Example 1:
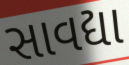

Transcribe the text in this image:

સાવદ્યા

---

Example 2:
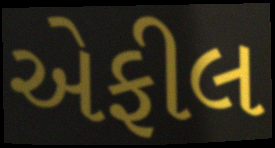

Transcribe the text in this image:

એફીલ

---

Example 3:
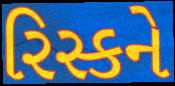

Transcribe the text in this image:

રિસ્કને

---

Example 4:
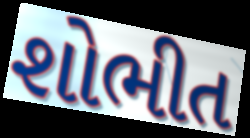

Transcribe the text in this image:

શોભીત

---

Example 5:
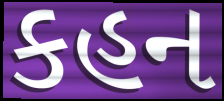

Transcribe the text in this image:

કહન